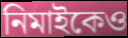
নিমাইকেও